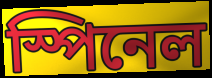
স্পিনেল